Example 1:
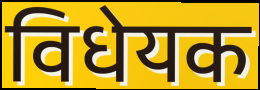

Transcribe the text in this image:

विधेयक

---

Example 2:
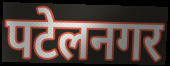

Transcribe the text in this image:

पटेलनगर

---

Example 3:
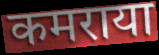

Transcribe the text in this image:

कमराया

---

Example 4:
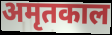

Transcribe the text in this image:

अमृतकाल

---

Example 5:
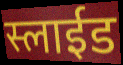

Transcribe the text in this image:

स्लाईड